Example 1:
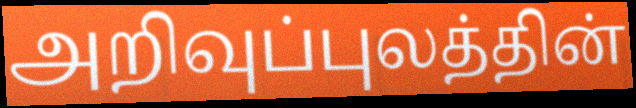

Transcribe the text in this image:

அறிவுப்புலத்தின்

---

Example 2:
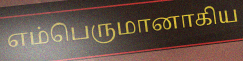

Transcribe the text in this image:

எம்பெருமானாகிய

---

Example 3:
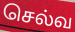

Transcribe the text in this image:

செல்வ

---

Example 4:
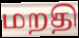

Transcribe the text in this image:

மறதி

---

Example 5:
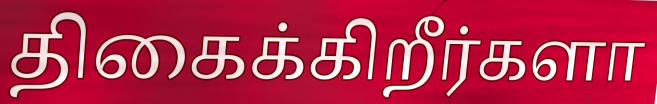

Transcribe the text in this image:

திகைக்கிறீர்களா